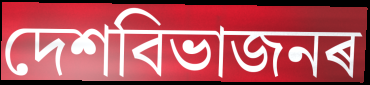
দেশবিভাজনৰ